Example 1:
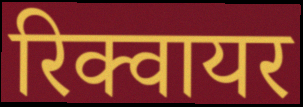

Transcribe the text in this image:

रिक्वायर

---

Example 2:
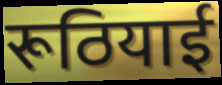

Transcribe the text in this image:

रूठियाई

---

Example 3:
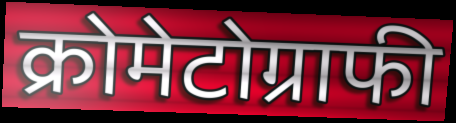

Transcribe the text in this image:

क्रोमेटोग्राफी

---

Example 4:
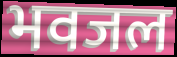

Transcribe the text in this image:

भवजल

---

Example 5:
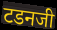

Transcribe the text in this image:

टडनजी